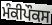
ਮੰਕੀਪੌਕਸ